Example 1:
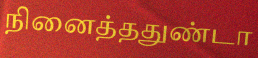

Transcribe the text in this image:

நினைத்ததுண்டா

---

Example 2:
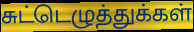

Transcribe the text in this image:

சுட்டெழுத்துக்கள்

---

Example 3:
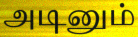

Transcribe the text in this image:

அடினும்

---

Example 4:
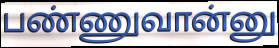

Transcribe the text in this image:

பண்ணுவான்னு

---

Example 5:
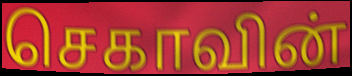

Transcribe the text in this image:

செகாவின்